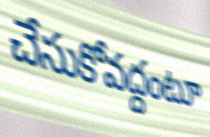
చేసుకోవద్దంటూ